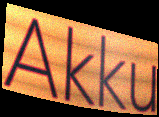
Akku